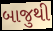
બાજુથી